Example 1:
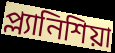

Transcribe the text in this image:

প্ল্যানিশিয়া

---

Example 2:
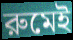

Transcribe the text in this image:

রুমেই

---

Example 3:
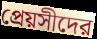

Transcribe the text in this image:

প্রেয়সীদের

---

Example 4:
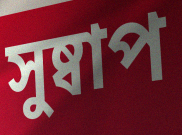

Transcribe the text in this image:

সুষ্বাপ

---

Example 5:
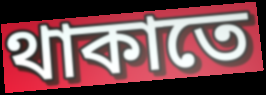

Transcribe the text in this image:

থাকাতে